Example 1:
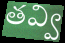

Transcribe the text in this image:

తవ్వి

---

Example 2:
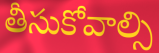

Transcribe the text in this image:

తీసుకోవాల్సి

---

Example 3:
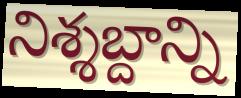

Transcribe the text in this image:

నిశ్శబ్దాన్ని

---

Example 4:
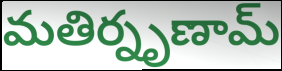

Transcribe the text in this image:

మతిర్నృణామ్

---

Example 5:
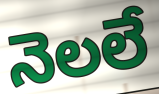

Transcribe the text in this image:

నెలలే